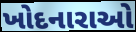
ખોદનારાઓ